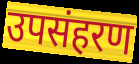
उपसंहरण